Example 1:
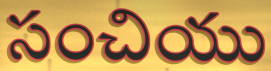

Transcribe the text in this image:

సంచియు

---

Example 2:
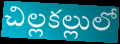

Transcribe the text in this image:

చిల్లకల్లులో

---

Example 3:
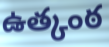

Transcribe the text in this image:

ఉత్కంఠ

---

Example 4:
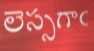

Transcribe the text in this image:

లెస్సగాఁ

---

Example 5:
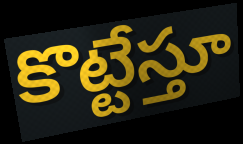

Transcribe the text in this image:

కొట్టేస్తూ